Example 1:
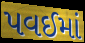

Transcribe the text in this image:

પવઈમાં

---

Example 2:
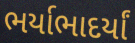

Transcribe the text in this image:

ભર્યાભાદર્યાં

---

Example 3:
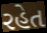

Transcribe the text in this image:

રહેત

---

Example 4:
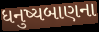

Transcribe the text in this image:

ધનુષ્યબાણના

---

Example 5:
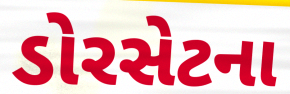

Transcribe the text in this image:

ડોરસેટના